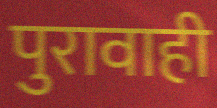
पुरावाही